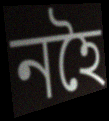
নহৈ